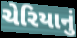
ચેરિયાનું